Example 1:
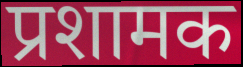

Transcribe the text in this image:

प्रशामक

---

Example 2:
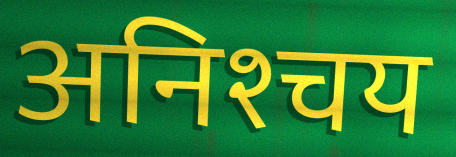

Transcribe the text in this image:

अनिश्चय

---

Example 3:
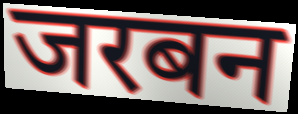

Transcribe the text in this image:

जरबन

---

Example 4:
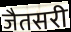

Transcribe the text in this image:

जैतसरी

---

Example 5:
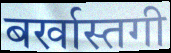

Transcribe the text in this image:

बर्खास्तगी